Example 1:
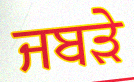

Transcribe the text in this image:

ਜਬੜੇ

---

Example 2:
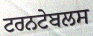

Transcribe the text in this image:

ਟਰਨਟੇਬਲਸ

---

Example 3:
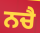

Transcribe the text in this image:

ਨਚੈ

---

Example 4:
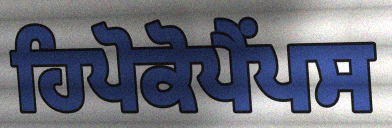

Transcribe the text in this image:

ਹਿਪੋਕੋਪੈਂਪਸ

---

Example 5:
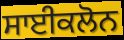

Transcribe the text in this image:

ਸਾਈਕਲੋਨ